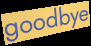
goodbye